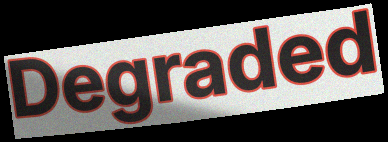
Degraded